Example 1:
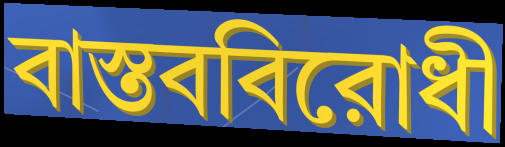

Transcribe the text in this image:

বাস্তববিরোধী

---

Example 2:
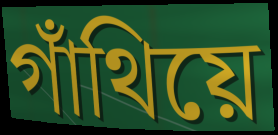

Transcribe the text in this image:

গাঁথিয়ে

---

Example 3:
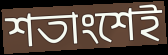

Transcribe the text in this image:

শতাংশেই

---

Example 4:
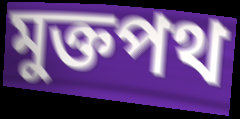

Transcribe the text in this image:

মুক্তপথ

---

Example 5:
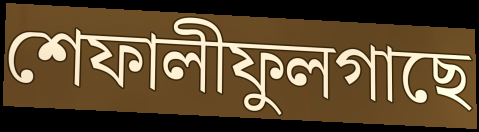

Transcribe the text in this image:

শেফালীফুলগাছে